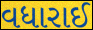
વધારાઈ